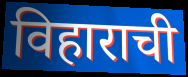
विहाराची